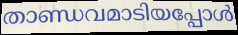
താണ്ഡവമാടിയപ്പോൾ